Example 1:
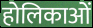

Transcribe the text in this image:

होलिकाओं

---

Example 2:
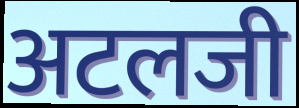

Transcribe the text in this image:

अटलजी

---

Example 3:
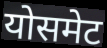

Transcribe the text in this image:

योसमेट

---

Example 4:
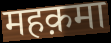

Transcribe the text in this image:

महक़मा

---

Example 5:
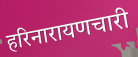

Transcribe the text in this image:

हरिनारायणचारी